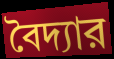
বৈদ্যার